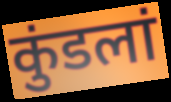
कुंडलां